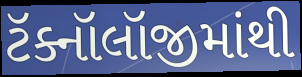
ટૅક્નૉલૉજીમાંથી